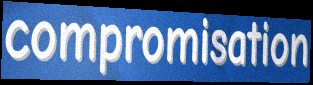
compromisation